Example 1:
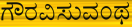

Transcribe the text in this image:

ಗೌರವಿಸುವಂಥ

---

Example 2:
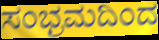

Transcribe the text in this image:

ಸಂಭ್ರಮದಿಂದ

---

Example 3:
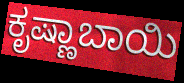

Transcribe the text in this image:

ಕೃಷ್ಣಾಬಾಯಿ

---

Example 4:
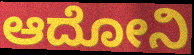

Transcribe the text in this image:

ಆದೋನಿ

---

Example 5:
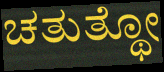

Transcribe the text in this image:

ಚತುತ್ಥೋ